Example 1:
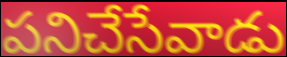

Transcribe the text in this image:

పనిచేసేవాడు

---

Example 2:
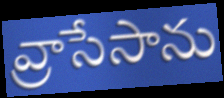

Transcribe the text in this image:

వ్రాసేసాను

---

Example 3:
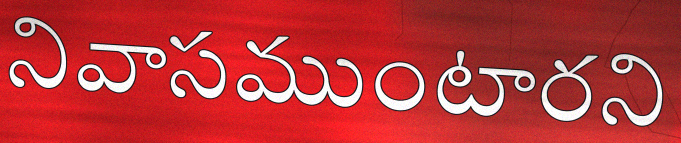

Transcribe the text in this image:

నివాసముంటారని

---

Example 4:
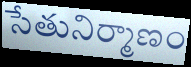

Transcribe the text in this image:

సేతునిర్మాణం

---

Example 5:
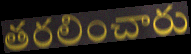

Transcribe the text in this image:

తరలించారు